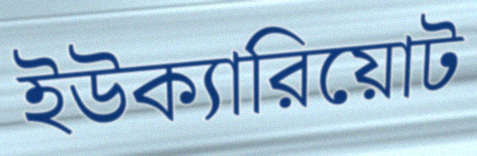
ইউক্যারিয়োট